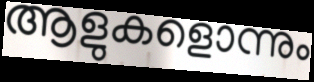
ആളുകളൊന്നും